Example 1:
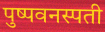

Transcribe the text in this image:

पुष्पवनस्पती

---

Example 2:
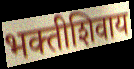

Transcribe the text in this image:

भक्तीशिवाय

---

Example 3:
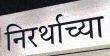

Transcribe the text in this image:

निरर्थाच्या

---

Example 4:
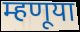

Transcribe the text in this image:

म्हणूया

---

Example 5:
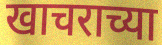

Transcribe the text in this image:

खाचराच्या